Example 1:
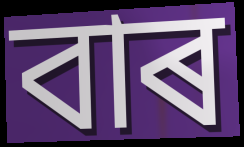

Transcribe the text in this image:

বাৰ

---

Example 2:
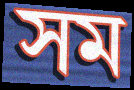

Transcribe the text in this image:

সম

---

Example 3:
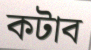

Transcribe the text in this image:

কটাব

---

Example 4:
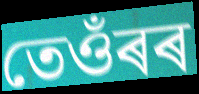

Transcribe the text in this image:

তেওঁৰৰ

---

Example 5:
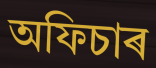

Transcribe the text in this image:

অফিচাৰ